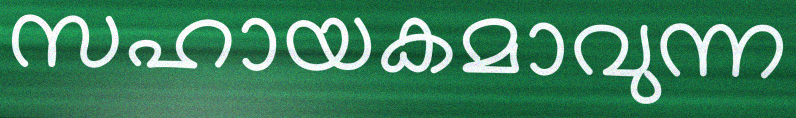
സഹായകമാവുന്ന